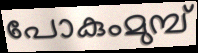
പോകുംമുമ്പ്